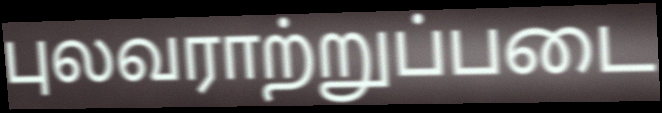
புலவராற்றுப்படை